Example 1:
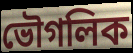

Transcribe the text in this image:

ভৌগলিক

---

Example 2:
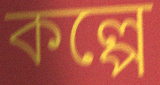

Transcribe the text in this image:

কল্পে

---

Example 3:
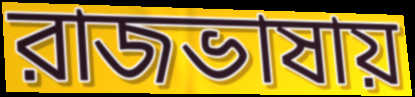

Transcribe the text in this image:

রাজভাষায়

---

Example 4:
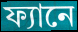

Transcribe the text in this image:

ফ্যানে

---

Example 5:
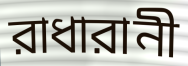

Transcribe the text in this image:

রাধারানী